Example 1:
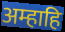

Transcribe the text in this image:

अम्हाहि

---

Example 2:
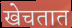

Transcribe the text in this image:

खेचतात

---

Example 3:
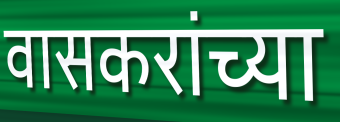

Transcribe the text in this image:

वासकरांच्या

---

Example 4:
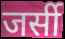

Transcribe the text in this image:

जर्सी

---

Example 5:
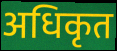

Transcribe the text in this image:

अधिकृत